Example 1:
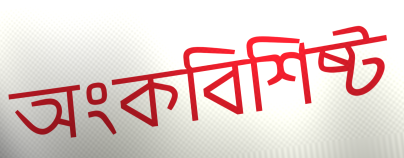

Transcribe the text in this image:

অংকবিশিষ্ট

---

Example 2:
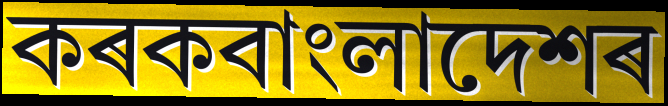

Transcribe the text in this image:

কৰকবাংলাদেশৰ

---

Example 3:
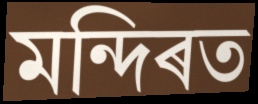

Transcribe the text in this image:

মন্দিৰত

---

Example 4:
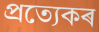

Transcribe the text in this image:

প্ৰত্যেকৰ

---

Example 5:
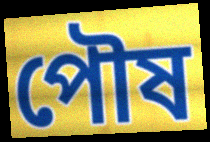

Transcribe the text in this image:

পৌষ